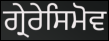
ਗ੍ਰੇਰੇਸਿਮੋਵ